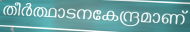
തീർത്ഥാടനകേന്ദ്രമാണ്